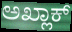
ಅಖ್ಲಾಕ್